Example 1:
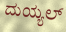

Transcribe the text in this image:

ದುಯ್ಯಲ್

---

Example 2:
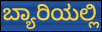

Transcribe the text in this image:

ಬ್ಯಾರಿಯಲ್ಲಿ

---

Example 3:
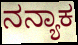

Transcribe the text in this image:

ನನ್ಯಾಕ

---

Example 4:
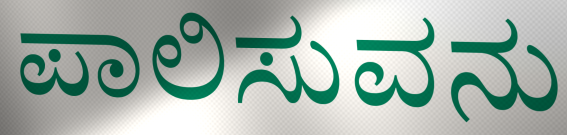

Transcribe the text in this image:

ಪಾಲಿಸುವನು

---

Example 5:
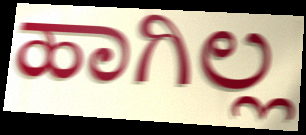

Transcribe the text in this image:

ಹಾಗಿಲ್ಲ